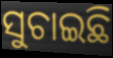
ସୁଚାଇଛି